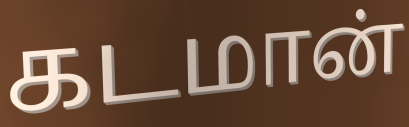
கடமான்